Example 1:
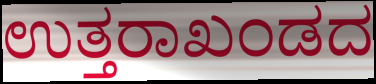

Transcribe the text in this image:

ಉತ್ತರಾಖಂಡದ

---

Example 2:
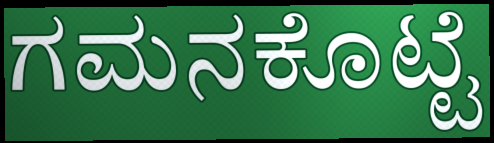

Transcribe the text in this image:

ಗಮನಕೊಟ್ಟೆ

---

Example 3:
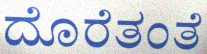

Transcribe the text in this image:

ದೊರೆತಂತೆ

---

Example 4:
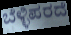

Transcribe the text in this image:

ಬೆಳ್ಳಿಪರದೆ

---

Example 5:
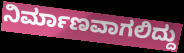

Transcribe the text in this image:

ನಿರ್ಮಾಣವಾಗಲಿದ್ದು